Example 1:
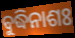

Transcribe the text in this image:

ବୁଦ୍ଧିନାଶଃ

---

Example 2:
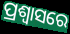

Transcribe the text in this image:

ପ୍ରଶ୍ଵାସରେ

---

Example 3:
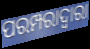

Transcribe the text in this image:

ପରମ୍ପରାଦ୍ବାରା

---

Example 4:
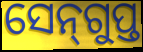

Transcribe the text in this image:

ସେନ୍‌ଗୁପ୍ତ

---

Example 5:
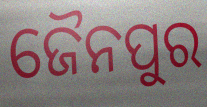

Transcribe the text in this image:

ଜୈନପୁର